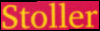
Stoller